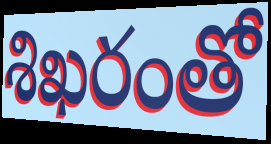
శిఖరంతో